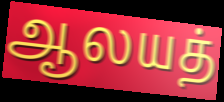
ஆலயத்